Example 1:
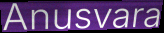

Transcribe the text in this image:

Anusvara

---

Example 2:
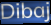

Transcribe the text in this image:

Dibaj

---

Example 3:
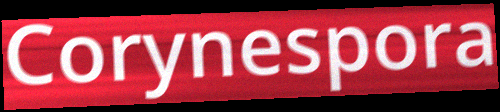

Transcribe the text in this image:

Corynespora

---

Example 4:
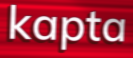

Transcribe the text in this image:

kapta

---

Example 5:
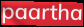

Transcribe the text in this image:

paartha